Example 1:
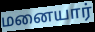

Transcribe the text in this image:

மனையார்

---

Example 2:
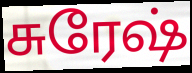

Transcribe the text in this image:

சுரேஷ்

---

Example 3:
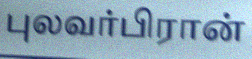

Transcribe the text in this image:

புலவர்பிரான்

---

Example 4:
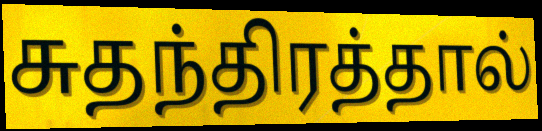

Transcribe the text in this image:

சுதந்திரத்தால்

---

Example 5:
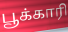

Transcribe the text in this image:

பூக்காரி